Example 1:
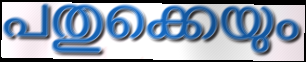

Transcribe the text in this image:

പതുക്കെയും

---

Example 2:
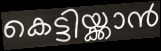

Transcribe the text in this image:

കെട്ടിയ്ക്കാൻ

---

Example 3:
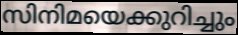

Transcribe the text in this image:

സിനിമയെക്കുറിച്ചും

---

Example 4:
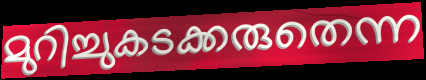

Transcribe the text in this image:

മുറിച്ചുകടക്കരുതെന്ന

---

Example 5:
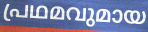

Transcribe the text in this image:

പ്രഥമവുമായ